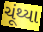
ચૂંથ્યા